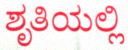
ಶೃತಿಯಲ್ಲಿ